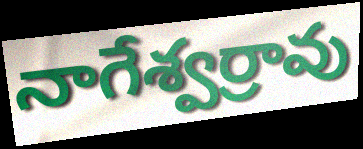
నాగేశ్వర్రావు